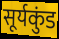
सूर्यकुंड